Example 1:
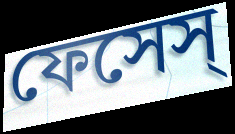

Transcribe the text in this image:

ফেসেস্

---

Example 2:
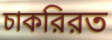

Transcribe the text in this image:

চাকরিরত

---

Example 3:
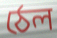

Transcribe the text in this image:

ঠেল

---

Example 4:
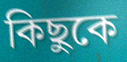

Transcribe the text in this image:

কিছুকে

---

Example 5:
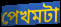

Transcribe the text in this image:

পেখমটা